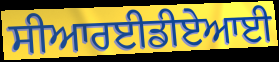
ਸੀਆਰਈਡੀਏਆਈ